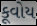
કૂવોય